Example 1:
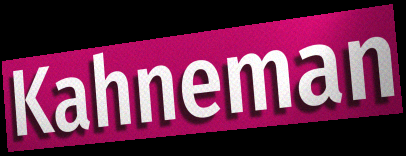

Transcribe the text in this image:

Kahneman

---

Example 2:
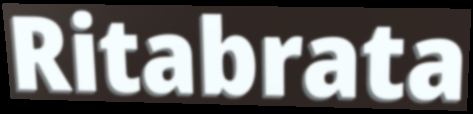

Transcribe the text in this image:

Ritabrata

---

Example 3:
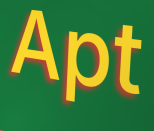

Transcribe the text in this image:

Apt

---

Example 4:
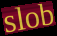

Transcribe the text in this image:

slob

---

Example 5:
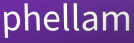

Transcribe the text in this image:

phellam